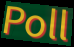
Poll